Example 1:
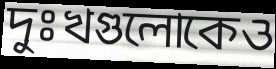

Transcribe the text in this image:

দুঃখগুলোকেও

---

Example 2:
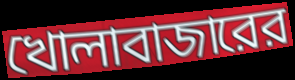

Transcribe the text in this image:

খোলাবাজারের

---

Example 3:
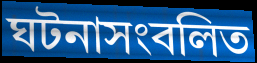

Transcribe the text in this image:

ঘটনাসংবলিত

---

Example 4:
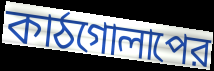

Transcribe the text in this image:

কাঠগোলাপের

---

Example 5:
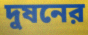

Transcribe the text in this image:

দুষনের